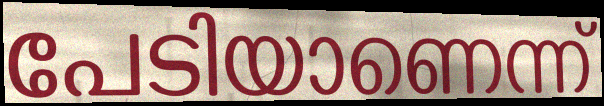
പേടിയാണെന്ന്